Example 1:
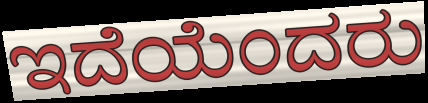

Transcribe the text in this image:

ಇದೆಯೆಂದರು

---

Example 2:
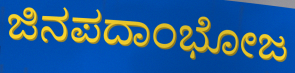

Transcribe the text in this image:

ಜಿನಪದಾಂಭೋಜ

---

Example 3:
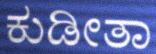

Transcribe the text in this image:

ಕುಡೀತಾ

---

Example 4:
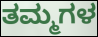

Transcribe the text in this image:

ತಮ್ಮಗಳ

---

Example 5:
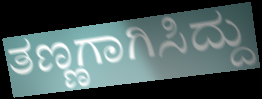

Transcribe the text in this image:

ತಣ್ಣಗಾಗಿಸಿದ್ದು